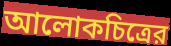
আলোকচিত্রের